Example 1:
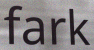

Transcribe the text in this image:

fark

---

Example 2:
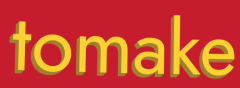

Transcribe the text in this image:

tomake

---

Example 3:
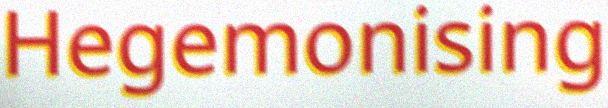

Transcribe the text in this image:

Hegemonising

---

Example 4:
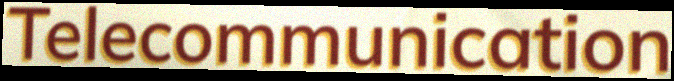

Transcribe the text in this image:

Telecommunication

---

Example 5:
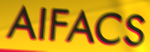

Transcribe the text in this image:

AIFACS